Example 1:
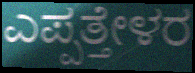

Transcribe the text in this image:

ಎಪ್ಪತ್ತೇಳರ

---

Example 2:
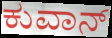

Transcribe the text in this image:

ಕುವಾನ್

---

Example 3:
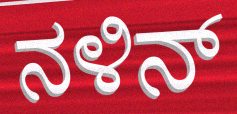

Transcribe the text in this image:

ನಳಿನ್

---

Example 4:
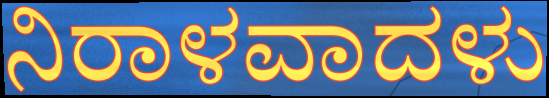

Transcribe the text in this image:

ನಿರಾಳವಾದಳು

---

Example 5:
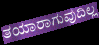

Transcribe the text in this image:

ತಯಾರಾಗುವುದಿಲ್ಲ